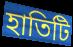
হাতিটি